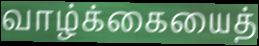
வாழ்க்கையைத்